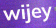
wijey